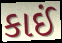
કાઈં